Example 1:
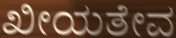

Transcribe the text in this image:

ಖೀಯತೇವ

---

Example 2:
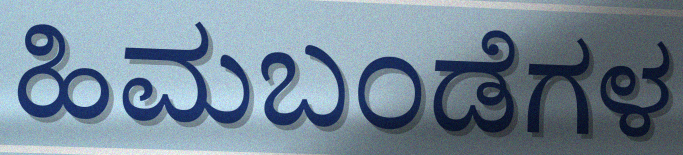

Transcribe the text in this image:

ಹಿಮಬಂಡೆಗಳ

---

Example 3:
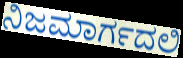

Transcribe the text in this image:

ನಿಜಮಾರ್ಗದಲಿ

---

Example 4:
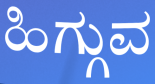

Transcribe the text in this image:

ಹಿಗ್ಗುವ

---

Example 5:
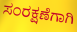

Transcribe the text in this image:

ಸಂರಕ್ಷಣೆಗಾಗಿ